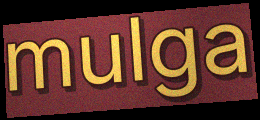
mulga